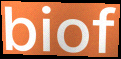
biof